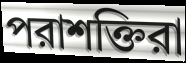
পরাশক্তিরা